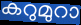
കറുമുറാ